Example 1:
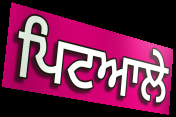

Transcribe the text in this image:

ਪਿਟਆਲੇ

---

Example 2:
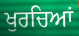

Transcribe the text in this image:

ਖੁਰਚਿਆਂ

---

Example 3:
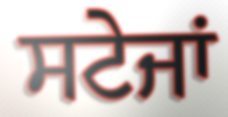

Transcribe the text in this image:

ਸਟੇਜਾਂ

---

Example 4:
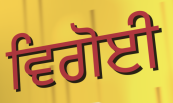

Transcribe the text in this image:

ਵਿਗੋਈ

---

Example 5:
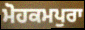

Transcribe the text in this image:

ਮੋਹਕਮਪੁਰਾ